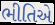
ભીતિએ